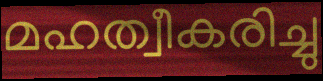
മഹത്വീകരിച്ചു